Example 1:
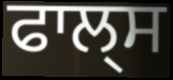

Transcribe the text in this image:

ਫਾਲ੍ਸ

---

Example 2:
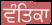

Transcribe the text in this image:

ਵੰਤਿਕਾ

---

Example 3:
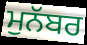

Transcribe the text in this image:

ਮੁਨੱਬਰ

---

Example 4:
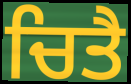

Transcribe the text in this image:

ਚਿਤੈ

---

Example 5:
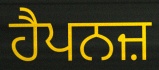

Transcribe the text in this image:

ਹੈਪਨਜ਼